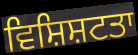
ਵਿਸ਼ਿਸ਼ਟਤਾ